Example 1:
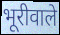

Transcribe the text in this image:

भूरीवाले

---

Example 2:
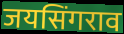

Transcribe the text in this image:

जयसिंगराव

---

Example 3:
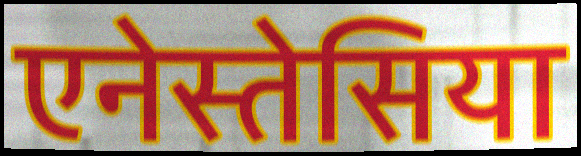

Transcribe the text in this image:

एनेस्तेसिया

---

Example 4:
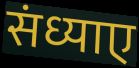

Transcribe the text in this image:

संध्याए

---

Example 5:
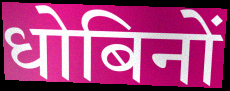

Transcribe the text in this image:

धोबिनों